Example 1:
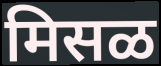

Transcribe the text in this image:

मिसळ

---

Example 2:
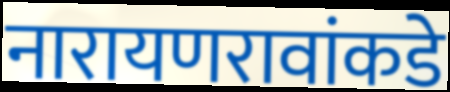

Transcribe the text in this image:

नारायणरावांकडे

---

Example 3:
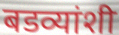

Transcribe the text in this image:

बडव्यांशी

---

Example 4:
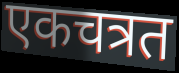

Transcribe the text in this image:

एकचत्रत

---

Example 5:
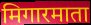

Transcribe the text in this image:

मिगारमाता